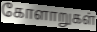
கோளாறுகள்